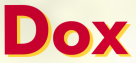
Dox